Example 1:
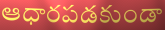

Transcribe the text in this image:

ఆధారపడకుండా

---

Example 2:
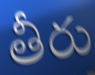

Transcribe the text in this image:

తీరు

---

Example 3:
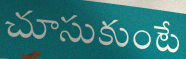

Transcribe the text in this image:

చూసుకుంటే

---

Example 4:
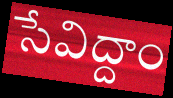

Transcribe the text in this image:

సేవిద్దాం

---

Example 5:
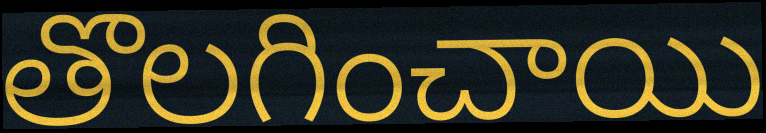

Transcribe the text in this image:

తొలగించాయి